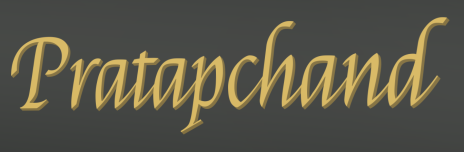
Pratapchand